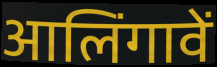
आलिंगावें